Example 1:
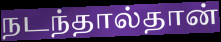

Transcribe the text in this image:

நடந்தால்தான்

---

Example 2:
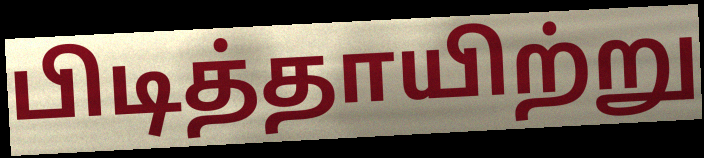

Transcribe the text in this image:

பிடித்தாயிற்று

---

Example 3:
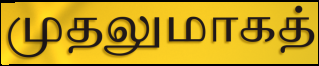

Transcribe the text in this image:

முதலுமாகத்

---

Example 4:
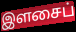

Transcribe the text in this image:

இளசைப்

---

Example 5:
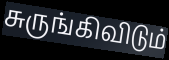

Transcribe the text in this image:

சுருங்கிவிடும்